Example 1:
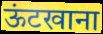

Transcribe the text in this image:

ऊंटखाना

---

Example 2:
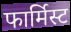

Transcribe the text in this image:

फार्मिस्ट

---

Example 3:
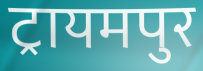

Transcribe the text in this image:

ट्रायमपुर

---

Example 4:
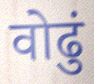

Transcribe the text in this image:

वोढुं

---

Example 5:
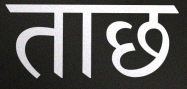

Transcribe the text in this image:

ताछ